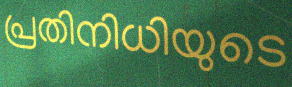
പ്രതിനിധിയുടെ